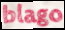
blago